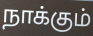
நாக்கும்